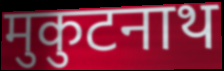
मुकुटनाथ